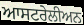
ਆਸਟਰੇਲੀਅਨ